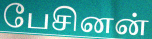
பேசினன்